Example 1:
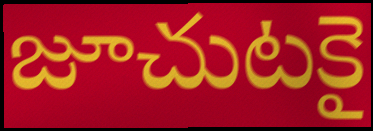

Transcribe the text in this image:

జూచుటకై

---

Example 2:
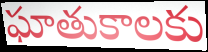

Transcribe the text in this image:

ఘాతుకాలకు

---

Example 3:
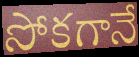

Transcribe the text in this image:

సోకగానే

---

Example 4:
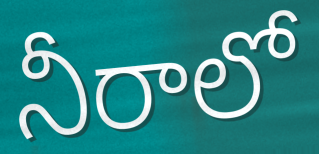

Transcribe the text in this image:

నీరాలో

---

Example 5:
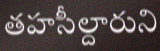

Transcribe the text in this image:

తహసీల్దారుని